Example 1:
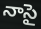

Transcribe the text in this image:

నాసై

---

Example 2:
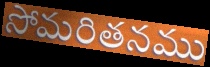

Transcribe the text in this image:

సోమరితనము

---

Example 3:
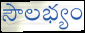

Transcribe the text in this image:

సౌలభ్యం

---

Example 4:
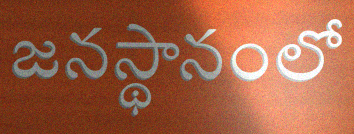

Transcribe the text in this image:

జనస్థానంలో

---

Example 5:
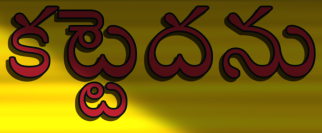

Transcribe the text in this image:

కట్టెదను